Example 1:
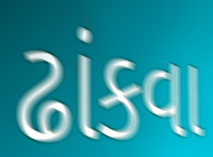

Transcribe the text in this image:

ઢાંકવા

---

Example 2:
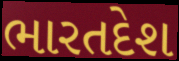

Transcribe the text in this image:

ભારતદેશ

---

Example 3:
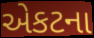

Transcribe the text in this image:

એકટના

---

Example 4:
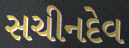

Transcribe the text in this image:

સચીનદેવ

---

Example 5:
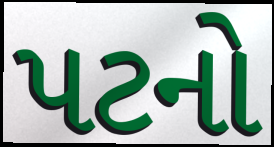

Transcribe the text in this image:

પટનો